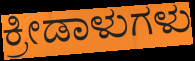
ಕ್ರೀಡಾಳುಗಳು